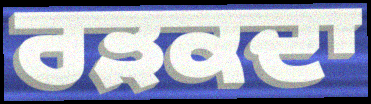
ਰੜਕਦਾ